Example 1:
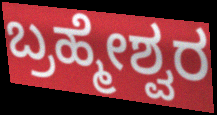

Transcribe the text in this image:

ಬ್ರಹ್ಮೇಶ್ವರ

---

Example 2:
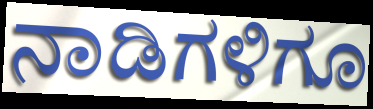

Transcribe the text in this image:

ನಾಡಿಗಳಿಗೂ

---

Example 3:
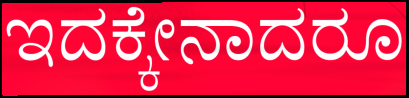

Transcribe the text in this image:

ಇದಕ್ಕೇನಾದರೂ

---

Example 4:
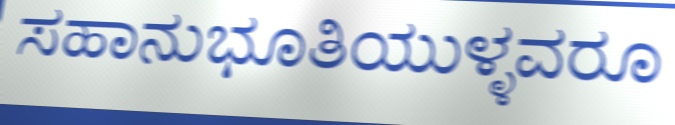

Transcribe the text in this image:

ಸಹಾನುಭೂತಿಯುಳ್ಳವರೂ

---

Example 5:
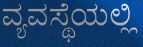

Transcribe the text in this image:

ವ್ಯವಸ್ಥೆಯಲ್ಲಿ